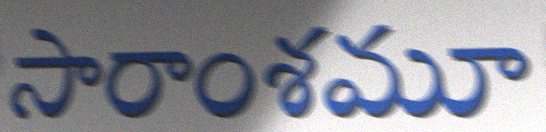
సారాంశమూ